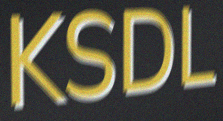
KSDL